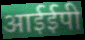
आईईपी